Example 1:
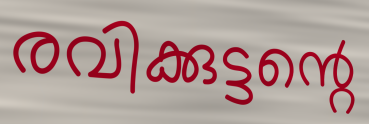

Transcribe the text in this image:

രവിക്കുട്ടന്റെ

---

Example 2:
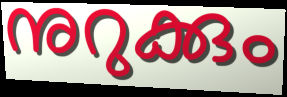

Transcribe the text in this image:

നുറുക്കും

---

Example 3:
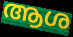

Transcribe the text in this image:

ആശ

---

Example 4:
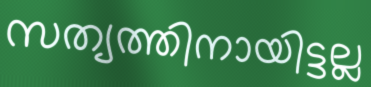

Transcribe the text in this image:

സത്യത്തിനായിട്ടല്ല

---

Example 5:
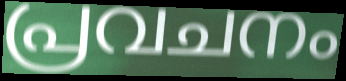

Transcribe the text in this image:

പ്രവചനം